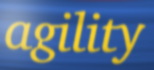
agility